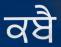
ਕਬੈ